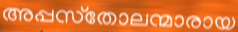
അപ്പസ്‌തോലന്മാരായ